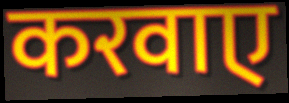
करवाए